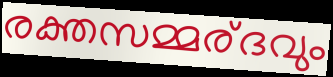
രക്തസമ്മര്ദവും